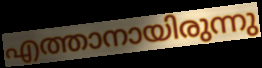
എത്താനായിരുന്നു